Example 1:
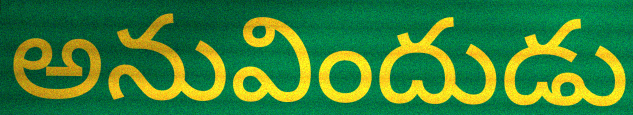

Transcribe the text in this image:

అనువిందుడు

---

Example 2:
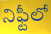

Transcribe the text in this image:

నిఫ్టీలో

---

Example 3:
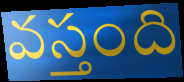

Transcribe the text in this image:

వస్తంది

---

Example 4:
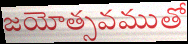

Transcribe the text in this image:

జయోత్సవముతో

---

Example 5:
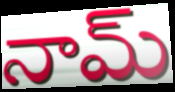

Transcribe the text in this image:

నామ్